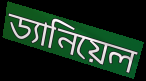
ড্যানিয়েল